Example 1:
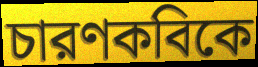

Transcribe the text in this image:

চারণকবিকে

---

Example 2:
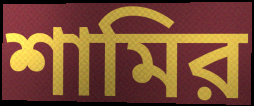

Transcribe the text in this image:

শামির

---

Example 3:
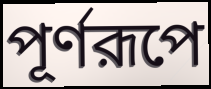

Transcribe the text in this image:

পূর্ণরূপে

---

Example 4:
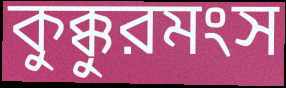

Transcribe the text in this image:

কুক্কুরমংস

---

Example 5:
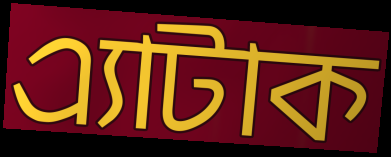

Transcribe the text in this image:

এ্যাটাক